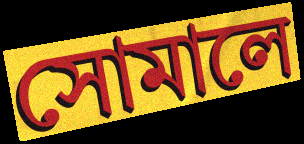
সোমালে